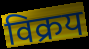
विक्रय